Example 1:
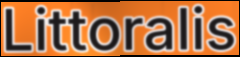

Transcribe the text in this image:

Littoralis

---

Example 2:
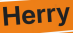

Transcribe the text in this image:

Herry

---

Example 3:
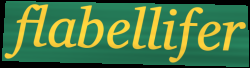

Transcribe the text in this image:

flabellifer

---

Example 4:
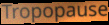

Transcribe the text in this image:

Tropopause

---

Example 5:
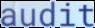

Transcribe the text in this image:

audit